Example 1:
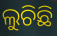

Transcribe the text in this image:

ଲୁଚିଛି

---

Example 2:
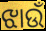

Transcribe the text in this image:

ଝାଉଁ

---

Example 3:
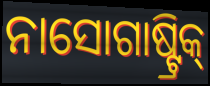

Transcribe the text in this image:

ନାସୋଗାଷ୍ଟ୍ରିକ୍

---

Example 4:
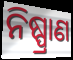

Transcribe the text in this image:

ନିଷ୍ପ୍ରାଣ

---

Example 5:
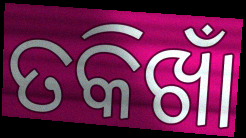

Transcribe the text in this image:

ତକିଖାଁ